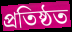
প্রতিষ্ঠত